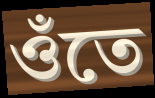
ওঁতে